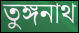
তুঙ্গনাথ